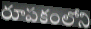
రూపకంలోని